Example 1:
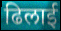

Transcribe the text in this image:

ढिलाई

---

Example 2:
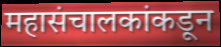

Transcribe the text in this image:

महासंचालकांकडून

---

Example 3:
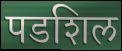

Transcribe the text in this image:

पडशिल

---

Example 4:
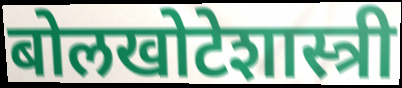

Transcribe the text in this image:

बोलखोटेशास्त्री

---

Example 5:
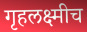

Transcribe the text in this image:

गृहलक्ष्मीच